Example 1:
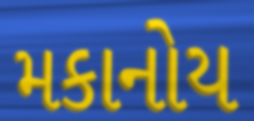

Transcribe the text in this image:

મકાનોય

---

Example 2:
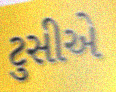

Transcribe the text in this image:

ટુસીએ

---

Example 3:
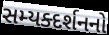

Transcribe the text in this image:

સમ્યક્દર્શનનો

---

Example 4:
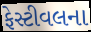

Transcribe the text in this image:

ફેસ્ટીવલના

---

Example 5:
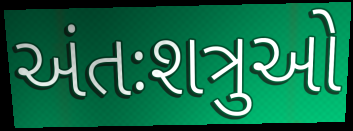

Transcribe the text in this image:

અંતઃશત્રુઓ